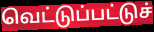
வெட்டுப்பட்டுச்